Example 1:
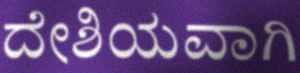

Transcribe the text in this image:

ದೇಶಿಯವಾಗಿ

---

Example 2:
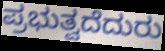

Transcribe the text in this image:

ಪ್ರಭುತ್ವದೆದುರು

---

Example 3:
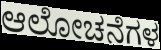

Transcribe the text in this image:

ಆಲೋಚನೆಗಳ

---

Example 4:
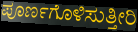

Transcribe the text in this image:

ಪೂರ್ಣಗೊಳಿಸುತ್ತೀರಿ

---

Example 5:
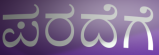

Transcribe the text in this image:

ಪರದೆಗೆ